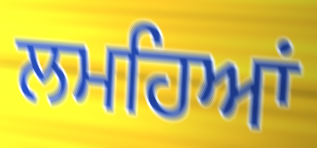
ਲਮਹਿਆਂ